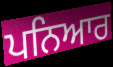
ਪਨਿਆਰ